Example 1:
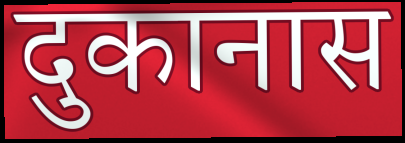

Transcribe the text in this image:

दुकानास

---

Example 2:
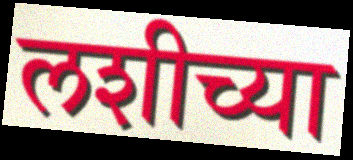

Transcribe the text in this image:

लशीच्या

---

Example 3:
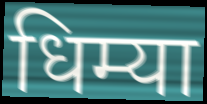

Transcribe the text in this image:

धिम्या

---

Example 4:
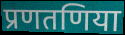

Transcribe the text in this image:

प्रणतणिया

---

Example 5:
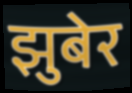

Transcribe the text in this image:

झुबेर